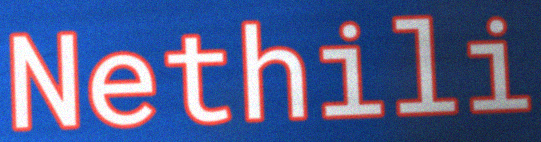
Nethili